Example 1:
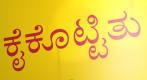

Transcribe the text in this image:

ಕೈಕೊಟ್ಟಿತು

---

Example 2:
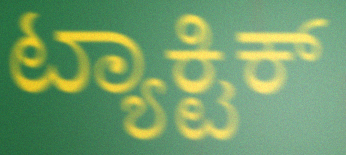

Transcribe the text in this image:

ಟ್ಯಾಕ್ಟಿಕ್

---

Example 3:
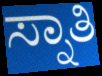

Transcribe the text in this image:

ಸ್ನಾತಿ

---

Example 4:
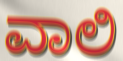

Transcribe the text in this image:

ವಾಲಿ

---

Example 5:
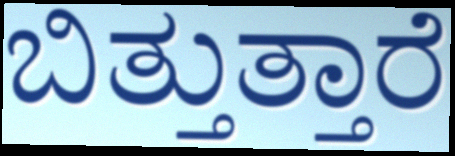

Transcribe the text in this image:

ಬಿತ್ತುತ್ತಾರೆ